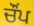
ਚੌਂਪ